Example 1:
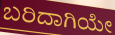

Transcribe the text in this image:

ಬರಿದಾಗಿಯೇ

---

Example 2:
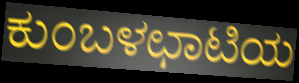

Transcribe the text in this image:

ಕುಂಬಳಛಾಟಿಯ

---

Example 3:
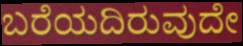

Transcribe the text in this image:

ಬರೆಯದಿರುವುದೇ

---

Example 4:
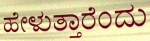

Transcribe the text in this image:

ಹೇಳುತ್ತಾರೆಂದು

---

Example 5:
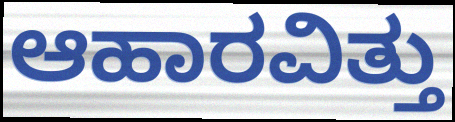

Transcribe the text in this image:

ಆಹಾರವಿತ್ತು